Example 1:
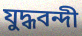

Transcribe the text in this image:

যুদ্ধবন্দী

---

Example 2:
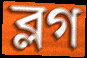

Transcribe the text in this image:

ব্লগ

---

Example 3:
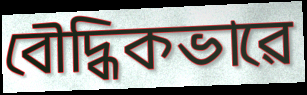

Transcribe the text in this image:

বৌদ্ধিকভাৱে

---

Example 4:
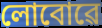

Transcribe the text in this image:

লোবোৱে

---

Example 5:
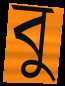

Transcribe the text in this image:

বু